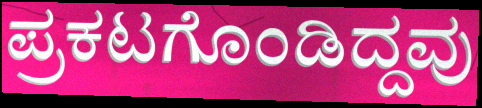
ಪ್ರಕಟಗೊಂಡಿದ್ದವು